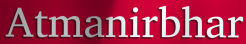
Atmanirbhar